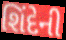
શિંદેની